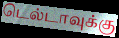
டெல்டாவுக்கு